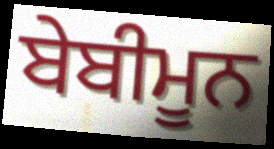
ਬੇਬੀਮੂਨ